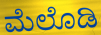
ಮೆಲೊಡಿ